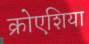
क्रोएशिया